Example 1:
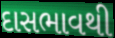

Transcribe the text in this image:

દાસભાવથી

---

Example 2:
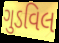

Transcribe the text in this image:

ગુડવિલ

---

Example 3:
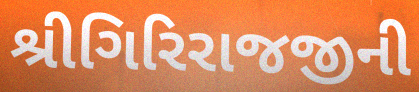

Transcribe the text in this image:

શ્રીગિરિરાજજીની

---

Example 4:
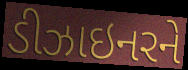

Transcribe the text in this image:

ડીઝાઇનરને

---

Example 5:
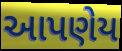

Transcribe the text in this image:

આપણેય